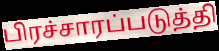
பிரச்சாரப்படுத்தி